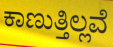
ಕಾಣುತ್ತಿಲ್ಲವೆ